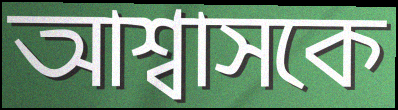
আশ্বাসকে